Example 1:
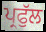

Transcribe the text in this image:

ਪ੍ਰਫੁੱਲ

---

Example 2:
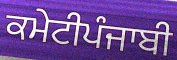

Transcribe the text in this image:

ਕਮੇਟੀਪੰਜਾਬੀ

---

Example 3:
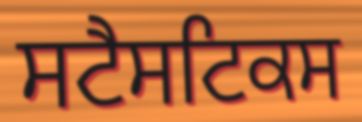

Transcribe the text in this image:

ਸਟੈਸਟਿਕਸ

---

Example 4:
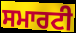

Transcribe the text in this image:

ਸਮਾਰਟੀ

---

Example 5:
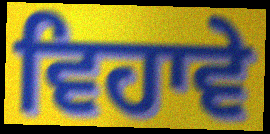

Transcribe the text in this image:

ਵਿਹਾਵੇ